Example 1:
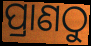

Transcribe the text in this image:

ପ୍ରାଣଠୁ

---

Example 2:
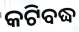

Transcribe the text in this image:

କଟିବଦ୍ଧ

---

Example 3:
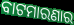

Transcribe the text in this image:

ବାଟମାରଣାର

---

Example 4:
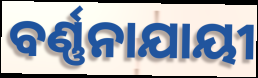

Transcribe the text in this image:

ବର୍ଣ୍ଣନାଯାୟୀ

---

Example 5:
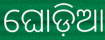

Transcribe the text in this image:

ଘୋଡ଼ିଆ